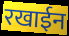
रखाईन